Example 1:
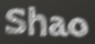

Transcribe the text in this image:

Shao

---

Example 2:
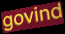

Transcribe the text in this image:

govind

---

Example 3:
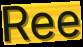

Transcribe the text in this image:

Ree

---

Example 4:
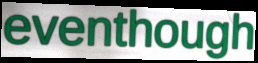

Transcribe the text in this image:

eventhough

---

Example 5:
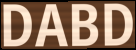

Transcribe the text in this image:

DABD